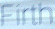
Firth